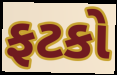
ફટકો